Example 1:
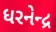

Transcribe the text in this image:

ધરનેન્દ્ર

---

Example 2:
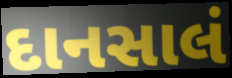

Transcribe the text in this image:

દાનસાલં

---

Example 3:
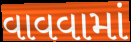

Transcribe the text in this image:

વાવવામાં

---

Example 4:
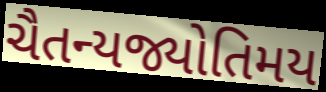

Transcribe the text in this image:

ચૈતન્યજ્યોતિમય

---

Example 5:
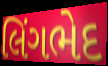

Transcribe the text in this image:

લિંગભેદ